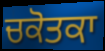
ਚਕੋਤਕਾ